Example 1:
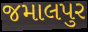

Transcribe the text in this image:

જમાલપુર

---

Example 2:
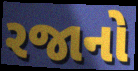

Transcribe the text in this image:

રજાનો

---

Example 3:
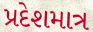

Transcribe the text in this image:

પ્રદેશમાત્ર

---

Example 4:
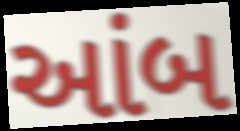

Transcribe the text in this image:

આંબ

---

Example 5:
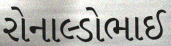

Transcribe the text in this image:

રોનાલ્ડોભાઈ